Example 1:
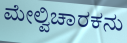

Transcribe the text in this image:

ಮೇಲ್ವಿಚಾರಕನು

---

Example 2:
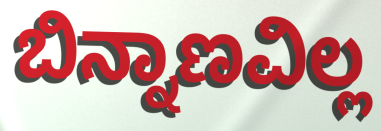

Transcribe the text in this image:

ಬಿನ್ನಾಣವಿಲ್ಲ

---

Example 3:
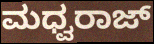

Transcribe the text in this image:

ಮಧ್ವರಾಜ್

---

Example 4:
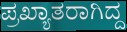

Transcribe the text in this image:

ಪ್ರಖ್ಯಾತರಾಗಿದ್ದ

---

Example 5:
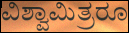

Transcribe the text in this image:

ವಿಶ್ವಾಮಿತ್ರರೂ